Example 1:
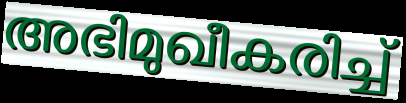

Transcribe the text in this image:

അഭിമുഖീകരിച്ച്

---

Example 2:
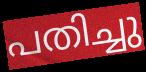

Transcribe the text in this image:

പതിച്ചു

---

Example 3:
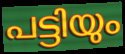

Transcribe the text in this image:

പട്ടിയും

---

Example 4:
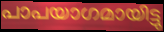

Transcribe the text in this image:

പാപയാഗമായിട്ടു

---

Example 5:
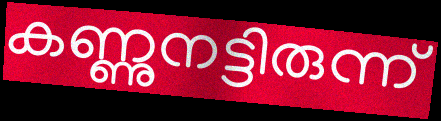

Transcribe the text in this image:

കണ്ണുനട്ടിരുന്ന്